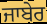
ਜਾਬੇਰ